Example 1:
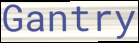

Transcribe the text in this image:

Gantry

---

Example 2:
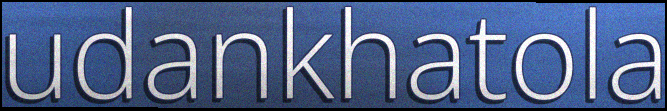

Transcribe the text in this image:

udankhatola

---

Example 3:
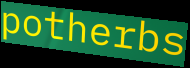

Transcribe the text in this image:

potherbs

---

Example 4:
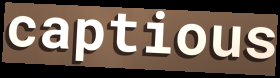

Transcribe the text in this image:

captious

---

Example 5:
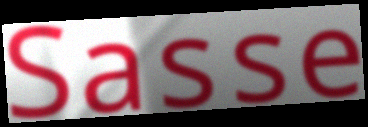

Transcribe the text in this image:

Sasse